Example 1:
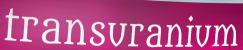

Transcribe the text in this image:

transuranium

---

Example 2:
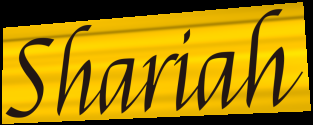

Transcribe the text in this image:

Shariah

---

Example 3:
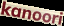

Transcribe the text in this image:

kanoori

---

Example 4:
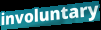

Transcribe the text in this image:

involuntary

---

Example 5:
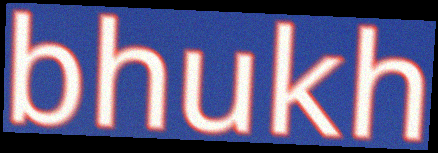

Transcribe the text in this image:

bhukh